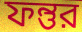
ফন্তুর